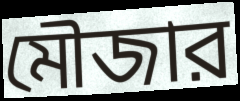
মৌজার